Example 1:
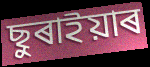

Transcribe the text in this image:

ছুৰাইয়াৰ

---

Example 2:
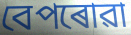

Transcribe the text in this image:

বেপৰোৱা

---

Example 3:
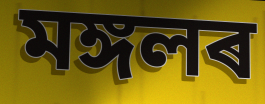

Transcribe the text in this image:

মঙ্গলৰ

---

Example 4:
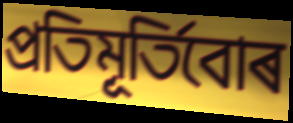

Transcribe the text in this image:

প্ৰতিমূৰ্তিবোৰ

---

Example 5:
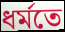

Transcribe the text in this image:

ধৰ্মতে